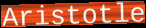
Aristotle